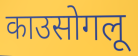
काउसोगलू